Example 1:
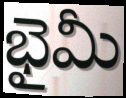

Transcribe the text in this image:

భైమీ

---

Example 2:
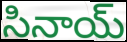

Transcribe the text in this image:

సినాయ్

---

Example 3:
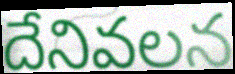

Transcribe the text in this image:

దేనివలన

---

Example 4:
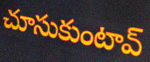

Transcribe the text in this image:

చూసుకుంటావ్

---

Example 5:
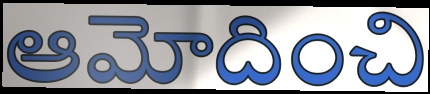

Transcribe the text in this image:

ఆమోదించి